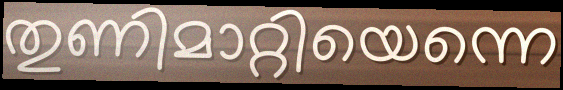
തുണിമാറ്റിയെന്നെ